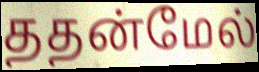
ததன்மேல்